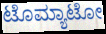
ಟೊಮ್ಯಾಟೋ